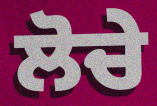
ਲੋਚੇ